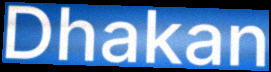
Dhakan